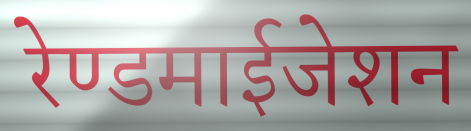
रेण्डमाईजेशन